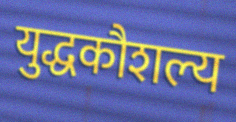
युद्धकौशल्य